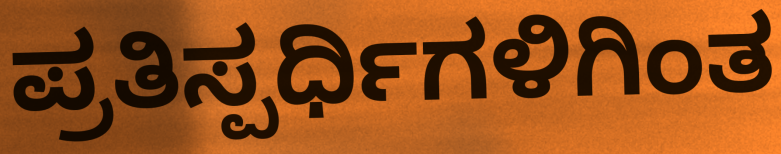
ಪ್ರತಿಸ್ಪರ್ಧಿಗಳಿಗಿಂತ